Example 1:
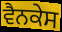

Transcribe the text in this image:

ਵੈਨਕੇਸ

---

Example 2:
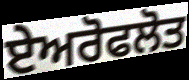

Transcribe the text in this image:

ਏਅਰੋਫਲੋਤ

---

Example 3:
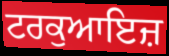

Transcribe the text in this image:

ਟਰਕੁਆਇਜ਼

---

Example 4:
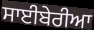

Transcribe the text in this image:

ਸਾਈਬੇਰੀਆ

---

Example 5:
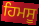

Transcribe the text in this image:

ਹਿਮਸੂ